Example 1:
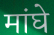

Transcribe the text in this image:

मांघे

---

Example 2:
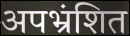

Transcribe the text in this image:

अपभ्रंशित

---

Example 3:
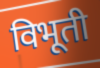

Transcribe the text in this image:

विभूती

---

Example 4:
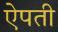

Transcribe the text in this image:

ऐपती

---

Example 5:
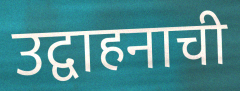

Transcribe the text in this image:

उद्वाहनाची